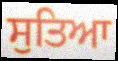
ਸੁਤਿਆ